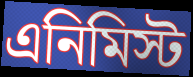
এনিমিস্ট